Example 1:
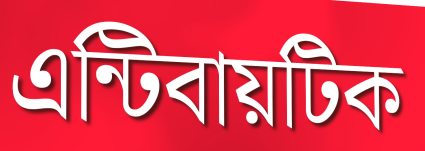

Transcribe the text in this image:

এন্টিবায়টিক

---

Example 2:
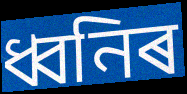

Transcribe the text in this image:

ধ্বনিৰ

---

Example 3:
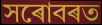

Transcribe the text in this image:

সৰোবৰত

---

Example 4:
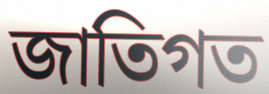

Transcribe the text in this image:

জাতিগত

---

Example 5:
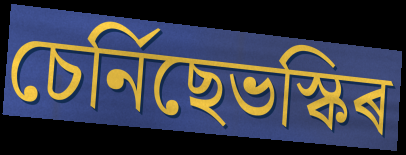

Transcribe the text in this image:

চেৰ্নিছেভস্কিৰ